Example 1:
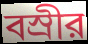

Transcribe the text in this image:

বস্রীর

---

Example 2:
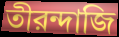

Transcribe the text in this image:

তীরন্দাজি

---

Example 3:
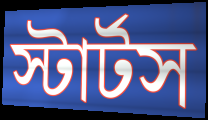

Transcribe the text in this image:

স্টার্টস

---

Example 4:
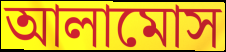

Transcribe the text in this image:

আলামোস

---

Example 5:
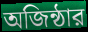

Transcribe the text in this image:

অজিন্ঠার